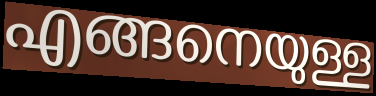
എങ്ങനെയുള്ള